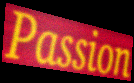
Passion